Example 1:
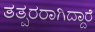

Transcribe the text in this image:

ತತ್ಪರರಾಗಿದ್ದಾರೆ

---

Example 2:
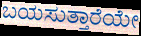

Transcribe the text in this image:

ಬಯಸುತ್ತಾರೆಯೇ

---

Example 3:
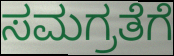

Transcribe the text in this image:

ಸಮಗ್ರತೆಗೆ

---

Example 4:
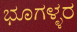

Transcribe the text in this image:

ಭೂಗಳ್ಳರ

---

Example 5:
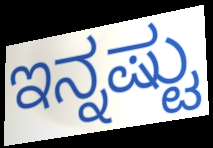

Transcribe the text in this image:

ಇನ್ನಷ್ಟು